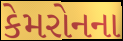
કેમરોનના